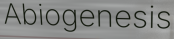
Abiogenesis